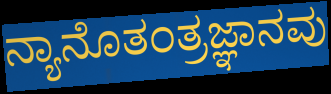
ನ್ಯಾನೊತಂತ್ರಜ್ಞಾನವು